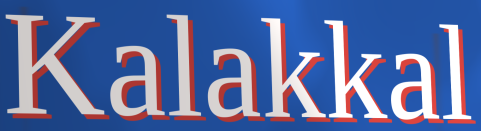
Kalakkal